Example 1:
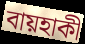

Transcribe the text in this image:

বায়হাকী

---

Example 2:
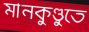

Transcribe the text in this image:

মানকুণ্ডুতে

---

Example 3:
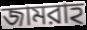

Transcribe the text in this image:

জামরাহ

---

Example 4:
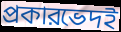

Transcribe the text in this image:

প্রকারভেদই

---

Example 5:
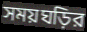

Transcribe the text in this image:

সময়ঘড়ির